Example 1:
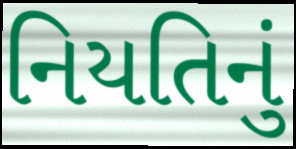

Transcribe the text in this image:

નિયતિનું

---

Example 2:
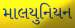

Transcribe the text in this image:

માલયુનિયન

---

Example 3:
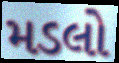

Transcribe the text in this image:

મડલો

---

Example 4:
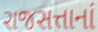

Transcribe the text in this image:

રાજસત્તાનાં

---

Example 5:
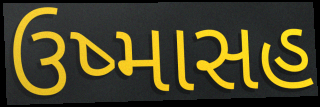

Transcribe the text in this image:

ઉષ્માસહ